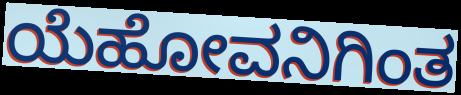
ಯೆಹೋವನಿಗಿಂತ